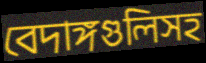
বেদাঙ্গগুলিসহ